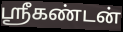
ஸ்ரீகண்டன்